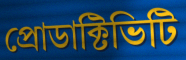
প্রোডাক্টিভিটি